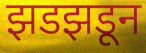
झडझडून